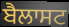
ਬੈਲਾਸਟ